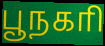
பூநகரி